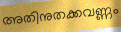
അതിനുതക്കവണ്ണം